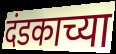
दंडकाच्या